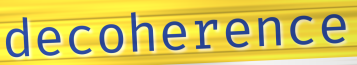
decoherence